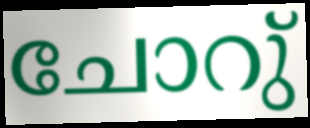
ചോറു്